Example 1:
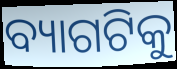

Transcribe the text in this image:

ବ୍ୟାଗଟିକୁ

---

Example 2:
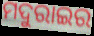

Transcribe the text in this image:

ମଦୁରାଇର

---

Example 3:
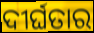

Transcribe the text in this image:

ଦୀର୍ଘତାର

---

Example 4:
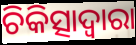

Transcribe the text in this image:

ଚିକିତ୍ସାଦ୍ଵାରା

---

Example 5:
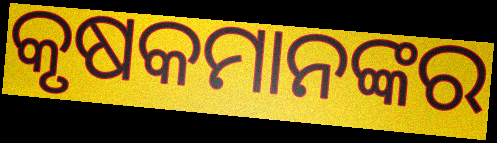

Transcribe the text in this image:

କୃଷକମାନଙ୍କର